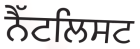
ਨੈੱਟਲਿਸਟ